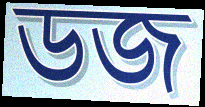
ডজ